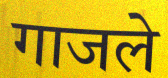
गाजले